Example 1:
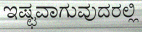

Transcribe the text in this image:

ಇಷ್ಟವಾಗುವುದರಲ್ಲಿ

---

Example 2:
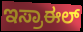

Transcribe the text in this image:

ಇಸ್ರಾಈಲ್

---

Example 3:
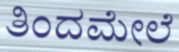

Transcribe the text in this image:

ತಿಂದಮೇಲೆ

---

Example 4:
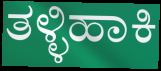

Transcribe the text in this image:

ತಳ್ಳಿಹಾಕಿ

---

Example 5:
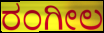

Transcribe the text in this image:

ರಂಗೀಲ